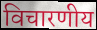
विचारणीय